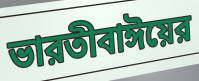
ভারতীবাঈয়ের